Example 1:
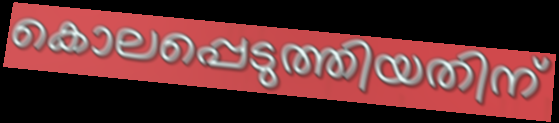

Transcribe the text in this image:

കൊലപ്പെടുത്തിയതിന്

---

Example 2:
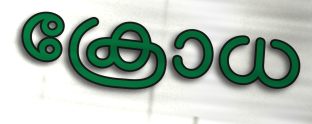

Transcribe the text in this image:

ക്രോധ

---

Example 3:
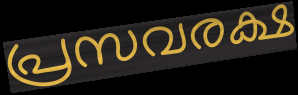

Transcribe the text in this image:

പ്രസവരക്ഷ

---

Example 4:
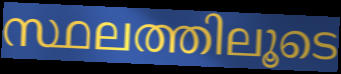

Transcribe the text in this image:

സ്ഥലത്തിലൂടെ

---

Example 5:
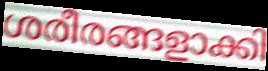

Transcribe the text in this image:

ശരീരങ്ങളാക്കി